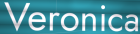
Veronica